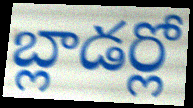
బ్లాడర్లో